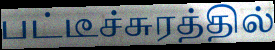
பட்டீச்சுரத்தில்